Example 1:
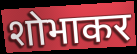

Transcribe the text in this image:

शोभाकर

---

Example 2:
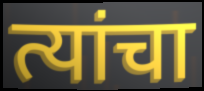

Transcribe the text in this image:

त्यांचा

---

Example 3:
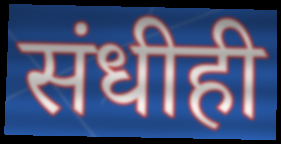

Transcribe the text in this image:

संधीही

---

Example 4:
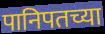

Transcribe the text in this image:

पानिपतच्या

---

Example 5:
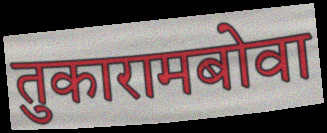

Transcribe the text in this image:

तुकारामबोवा